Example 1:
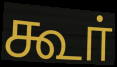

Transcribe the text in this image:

கூர்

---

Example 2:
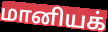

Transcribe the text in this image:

மானியக்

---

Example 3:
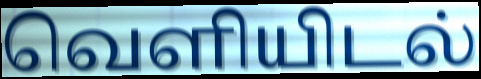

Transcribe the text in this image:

வெளியிடல்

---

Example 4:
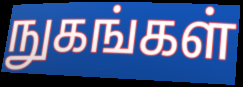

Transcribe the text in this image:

நுகங்கள்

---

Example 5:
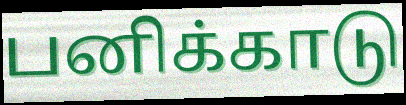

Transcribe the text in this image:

பனிக்காடு